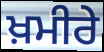
ਖ਼ਮੀਰੇ